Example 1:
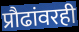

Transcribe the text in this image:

प्रौढांवरही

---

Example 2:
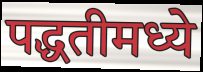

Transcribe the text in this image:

पद्धतीमध्ये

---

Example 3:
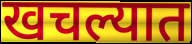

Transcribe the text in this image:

खचल्यात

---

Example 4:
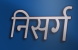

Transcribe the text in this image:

निसर्ग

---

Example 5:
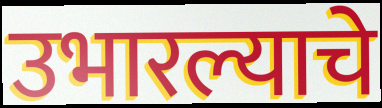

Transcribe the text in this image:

उभारल्याचे